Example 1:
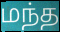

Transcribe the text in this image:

மந்த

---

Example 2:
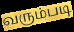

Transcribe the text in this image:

வரும்படி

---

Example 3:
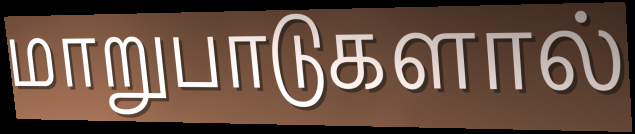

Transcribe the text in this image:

மாறுபாடுகளால்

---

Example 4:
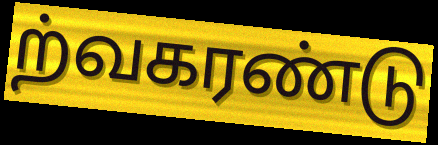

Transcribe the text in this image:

ற்வகரண்டு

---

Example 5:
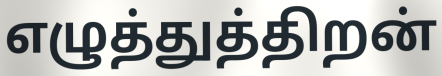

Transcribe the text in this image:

எழுத்துத்திறன்